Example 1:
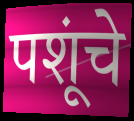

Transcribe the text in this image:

पशूंचे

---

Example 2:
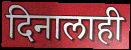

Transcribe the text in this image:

दिनालाही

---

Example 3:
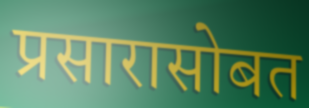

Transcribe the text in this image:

प्रसारासोबत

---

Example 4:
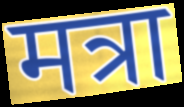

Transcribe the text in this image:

मत्रा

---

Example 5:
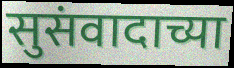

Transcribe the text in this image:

सुसंवादाच्या